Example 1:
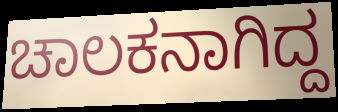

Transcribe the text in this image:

ಚಾಲಕನಾಗಿದ್ದ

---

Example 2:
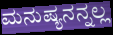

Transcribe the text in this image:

ಮನುಷ್ಯನನ್ನಲ್ಲ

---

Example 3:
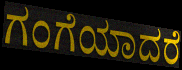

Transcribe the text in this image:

ಗಂಗೆಯಾದರೆ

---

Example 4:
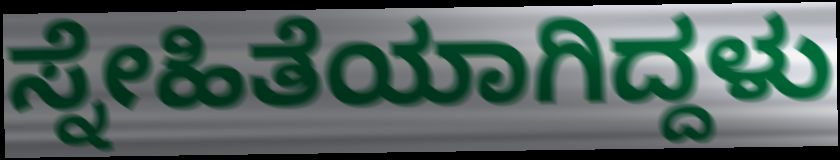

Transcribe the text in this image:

ಸ್ನೇಹಿತೆಯಾಗಿದ್ದಳು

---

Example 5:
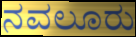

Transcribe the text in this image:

ನವಲೂರು